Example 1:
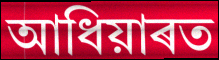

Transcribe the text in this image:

আধিয়াৰত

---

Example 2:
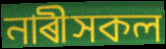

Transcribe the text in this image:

নাৰীসকল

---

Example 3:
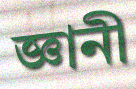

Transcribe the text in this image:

জ্ঞানী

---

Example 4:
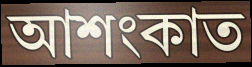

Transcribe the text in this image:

আশংকাত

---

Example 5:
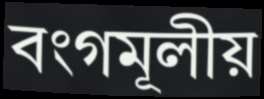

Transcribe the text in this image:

বংগমূলীয়